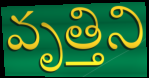
వృత్తిని